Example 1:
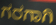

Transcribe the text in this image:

ಗರಗಾಗಿ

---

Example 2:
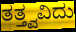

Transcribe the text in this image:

ತತ್ತ್ವವಿದು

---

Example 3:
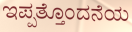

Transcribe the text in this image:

ಇಪ್ಪತ್ತೊಂದನೆಯ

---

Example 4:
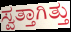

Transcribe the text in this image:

ಸ್ವತ್ತಾಗಿತ್ತು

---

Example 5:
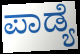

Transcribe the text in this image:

ಪಾಡ್ಯೆ